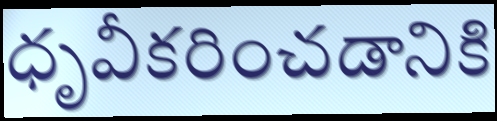
ధృవీకరించడానికి